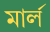
মার্ল